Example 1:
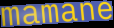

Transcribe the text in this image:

mamane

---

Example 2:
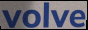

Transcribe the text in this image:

volve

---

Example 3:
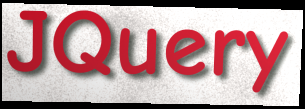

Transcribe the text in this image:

JQuery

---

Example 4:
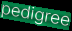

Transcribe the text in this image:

pedigree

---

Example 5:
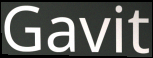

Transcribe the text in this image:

Gavit